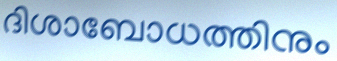
ദിശാബോധത്തിനും